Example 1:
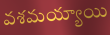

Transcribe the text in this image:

వశమయ్యాయి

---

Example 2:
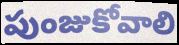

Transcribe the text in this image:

పుంజుకోవాలి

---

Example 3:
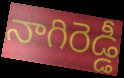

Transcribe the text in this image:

నాగిరెడ్డీ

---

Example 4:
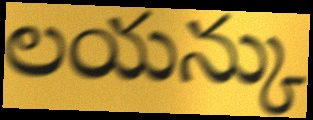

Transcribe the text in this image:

లయన్కు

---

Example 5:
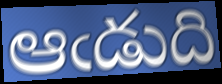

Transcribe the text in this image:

ఆఁడుది